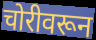
चोरीवरून